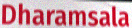
Dharamsala